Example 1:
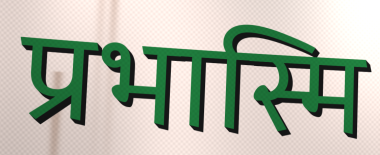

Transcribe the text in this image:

प्रभास्मि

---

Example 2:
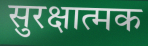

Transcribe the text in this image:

सुरक्षात्मक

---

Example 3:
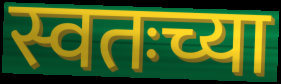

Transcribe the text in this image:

स्वतःच्या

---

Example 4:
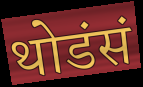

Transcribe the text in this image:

थोडंसं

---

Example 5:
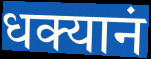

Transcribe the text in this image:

धक्यानं